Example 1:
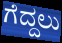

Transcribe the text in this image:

ಗೆದ್ದಲು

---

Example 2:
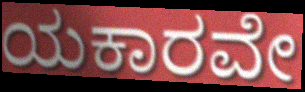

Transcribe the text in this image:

ಯಕಾರವೇ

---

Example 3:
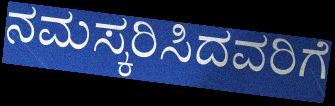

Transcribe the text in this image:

ನಮಸ್ಕರಿಸಿದವರಿಗೆ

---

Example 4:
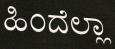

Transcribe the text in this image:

ಹಿಂದೆಲ್ಲಾ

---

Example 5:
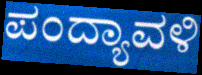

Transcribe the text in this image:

ಪಂದ್ಯಾವಳಿ